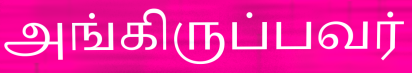
அங்கிருப்பவர்